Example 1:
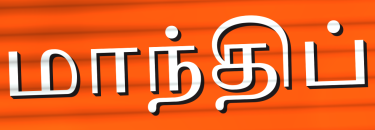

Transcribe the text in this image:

மாந்திப்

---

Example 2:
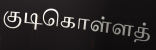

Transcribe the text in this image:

குடிகொள்ளத்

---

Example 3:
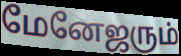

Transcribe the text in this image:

மேனேஜரும்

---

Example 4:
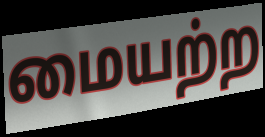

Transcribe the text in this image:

மையற்ற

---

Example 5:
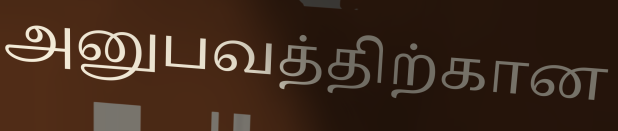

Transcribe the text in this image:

அனுபவத்திற்கான